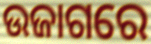
ଉଜାଗରେ